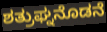
ಶತ್ರುಘ್ನನೊಡನೆ